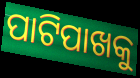
ପାଟିପାଖକୁ